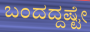
ಬಂದದ್ದಷ್ಟೇ